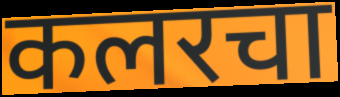
कलरचा